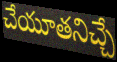
చేయూతనిచ్చే